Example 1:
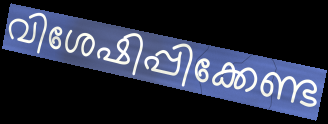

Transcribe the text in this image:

വിശേഷിപ്പിക്കേണ്ട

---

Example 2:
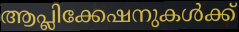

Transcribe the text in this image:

ആപ്ലിക്കേഷനുകൾക്ക്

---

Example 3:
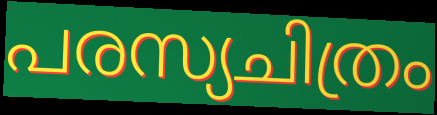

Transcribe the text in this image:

പരസ്യചിത്രം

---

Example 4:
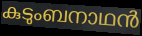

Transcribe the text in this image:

കുടുംബനാഥൻ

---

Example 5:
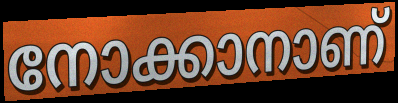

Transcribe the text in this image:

നോക്കാനാണ്